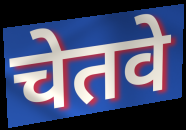
चेतवे